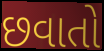
છવાતો